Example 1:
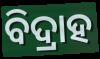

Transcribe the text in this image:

ବିଦ୍ରାହ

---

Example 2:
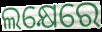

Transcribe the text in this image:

ଲକ୍ଷେରେ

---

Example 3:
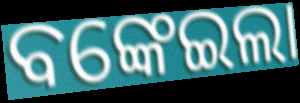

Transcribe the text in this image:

ବଙ୍କେଇଲା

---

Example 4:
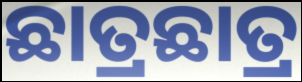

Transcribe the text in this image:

ଛାତ୍ରଛାତ୍ର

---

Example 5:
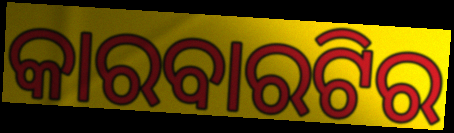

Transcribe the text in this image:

କାରବାରଟିର